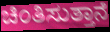
ಚಿಂತಿಸುತ್ತಾನೆ